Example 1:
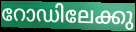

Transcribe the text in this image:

റോഡിലേക്കു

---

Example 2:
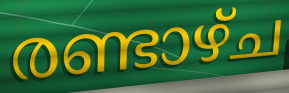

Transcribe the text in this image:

രണ്ടാഴ്ച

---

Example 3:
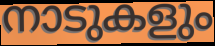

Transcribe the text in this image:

നാടുകളും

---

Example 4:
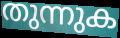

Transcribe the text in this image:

തുന്നുക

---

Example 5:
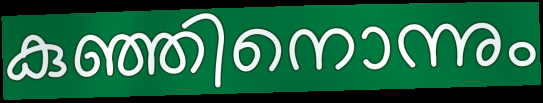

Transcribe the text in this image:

കുഞ്ഞിനൊന്നും